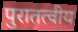
पुरातत्वीय